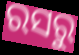
ରସରୁ